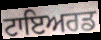
ਟਾਇਅਰਡ